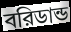
বরিডান্ড